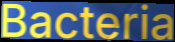
Bacteria